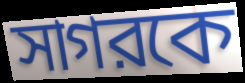
সাগরকে